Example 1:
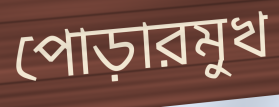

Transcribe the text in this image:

পোড়ারমুখ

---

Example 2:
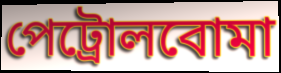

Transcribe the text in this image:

পেট্রোলবোমা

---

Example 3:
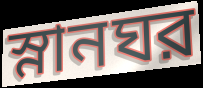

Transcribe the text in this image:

স্নানঘর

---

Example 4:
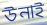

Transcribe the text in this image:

উনাই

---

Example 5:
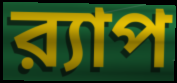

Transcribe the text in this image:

র‍্যাপ